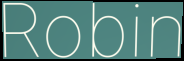
Robin